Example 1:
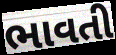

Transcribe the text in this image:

ભાવતી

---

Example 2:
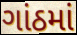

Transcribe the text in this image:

ગાંઠમાં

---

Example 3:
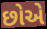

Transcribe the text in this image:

છોએ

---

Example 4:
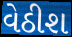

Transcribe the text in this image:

વેઠીશ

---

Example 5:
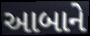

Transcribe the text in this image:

આબાને